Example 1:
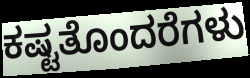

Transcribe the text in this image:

ಕಷ್ಟತೊಂದರೆಗಳು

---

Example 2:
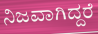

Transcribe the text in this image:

ನಿಜವಾಗಿದ್ದರೆ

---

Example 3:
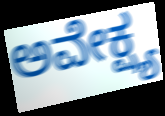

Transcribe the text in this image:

ಅವೇಕ್ಷ್ಯ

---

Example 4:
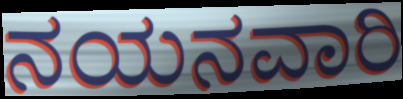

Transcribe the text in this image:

ನಯನವಾರಿ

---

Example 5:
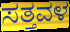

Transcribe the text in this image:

ಸತ್ತವಳ